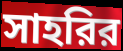
সাহরির